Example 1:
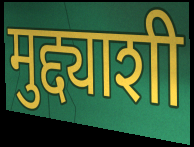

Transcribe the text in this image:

मुद्द्याशी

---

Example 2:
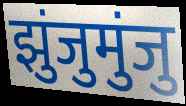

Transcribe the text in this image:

झुंजुमुंजु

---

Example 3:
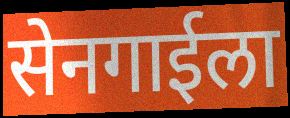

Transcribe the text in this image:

सेनगाईला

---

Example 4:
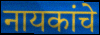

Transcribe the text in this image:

नायकांचे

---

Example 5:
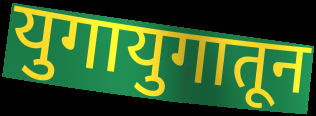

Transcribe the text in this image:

युगायुगातून